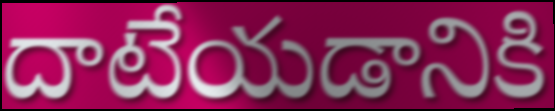
దాటేయడానికి